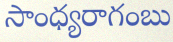
సాంధ్యరాగంబు